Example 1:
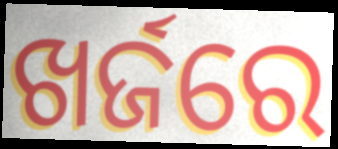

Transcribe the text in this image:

ଖର୍ଜରେ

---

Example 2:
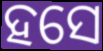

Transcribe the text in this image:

ହସେ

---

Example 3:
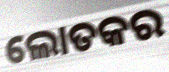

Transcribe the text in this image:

ଲୋତକର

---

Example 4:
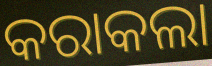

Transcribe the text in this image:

କରାକଲା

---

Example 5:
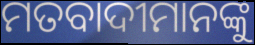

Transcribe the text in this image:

ମତବାଦୀମାନଙ୍କୁ